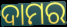
ଦାମର